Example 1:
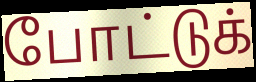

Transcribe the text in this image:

போட்டுக்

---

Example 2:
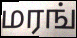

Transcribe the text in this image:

மரங்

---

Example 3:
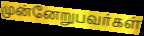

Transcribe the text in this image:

முன்னேறுபவர்கள்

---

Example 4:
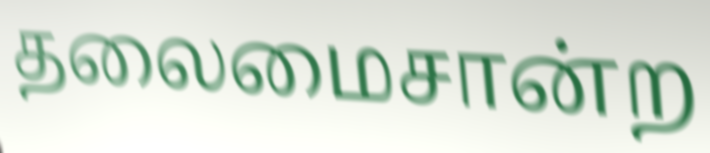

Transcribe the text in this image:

தலைமைசான்ற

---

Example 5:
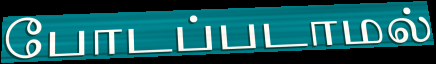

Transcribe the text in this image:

போடப்படாமல்